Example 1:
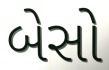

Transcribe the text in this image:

બેસો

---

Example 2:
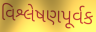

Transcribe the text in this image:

વિશ્લેષણપૂર્વક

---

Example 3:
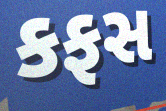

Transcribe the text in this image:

કફસ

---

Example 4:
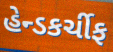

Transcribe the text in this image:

હેન્ડકર્ચીફ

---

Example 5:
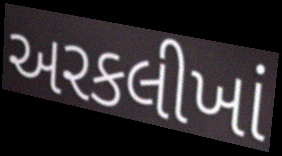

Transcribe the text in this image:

અરકલીખાં